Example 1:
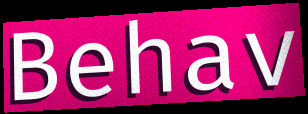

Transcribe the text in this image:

Behav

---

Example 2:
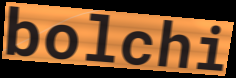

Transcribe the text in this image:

bolchi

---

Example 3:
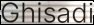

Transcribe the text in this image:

Ghisadi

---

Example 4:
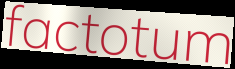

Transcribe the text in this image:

factotum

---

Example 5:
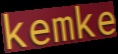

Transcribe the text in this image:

kemke